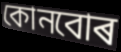
কোনবোৰ